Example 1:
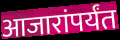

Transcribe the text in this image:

आजारांपर्यंत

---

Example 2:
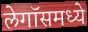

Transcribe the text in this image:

लेगॉसमध्ये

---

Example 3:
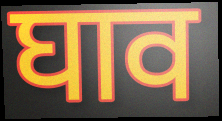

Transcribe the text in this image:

घाव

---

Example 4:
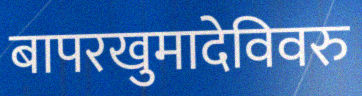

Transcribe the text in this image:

बापरखुमादेविवरु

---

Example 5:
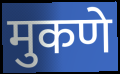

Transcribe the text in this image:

मुकणे